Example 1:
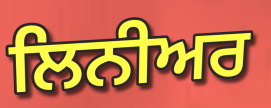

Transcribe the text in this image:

ਲਿਨੀਅਰ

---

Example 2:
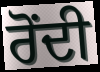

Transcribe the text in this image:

ਰੋਂਦੀ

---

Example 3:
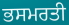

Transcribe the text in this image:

ਭਸਮਰਤੀ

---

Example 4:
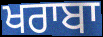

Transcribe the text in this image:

ਖਰਾਬਾ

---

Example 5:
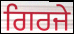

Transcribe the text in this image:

ਗਿਰਜੇ